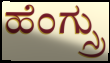
ಹೆಂಗ್ಸ್ರು